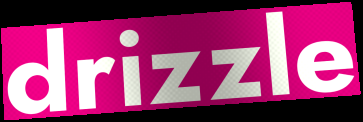
drizzle